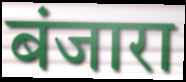
बंजारा